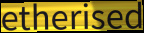
etherised